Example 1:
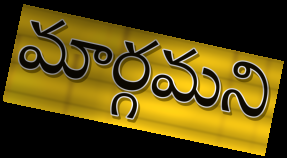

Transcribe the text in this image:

మార్గమని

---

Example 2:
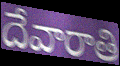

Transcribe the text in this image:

దేవారాతి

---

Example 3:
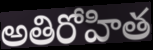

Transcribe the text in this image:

అతిరోహిత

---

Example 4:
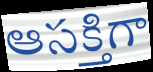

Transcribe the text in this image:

ఆసక్తిగా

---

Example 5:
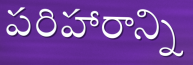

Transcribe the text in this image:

పరిహారాన్ని